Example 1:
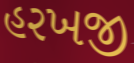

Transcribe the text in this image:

હરખજી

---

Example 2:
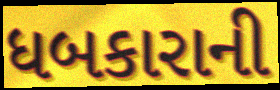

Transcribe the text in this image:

ધબકારાની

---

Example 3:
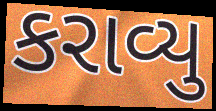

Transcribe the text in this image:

કરાવ્યુ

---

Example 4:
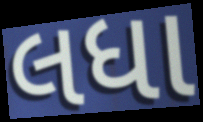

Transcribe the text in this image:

લધા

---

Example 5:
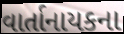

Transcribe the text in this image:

વાર્તાનાયકના